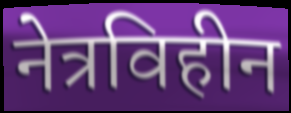
नेत्रविहीन